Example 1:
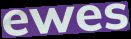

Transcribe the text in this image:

ewes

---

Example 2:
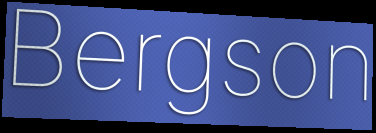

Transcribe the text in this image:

Bergson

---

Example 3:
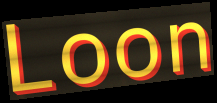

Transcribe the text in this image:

Loon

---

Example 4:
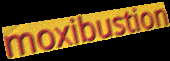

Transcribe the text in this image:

moxibustion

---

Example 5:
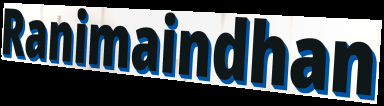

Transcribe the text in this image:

Ranimaindhan